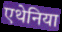
एथेनिया